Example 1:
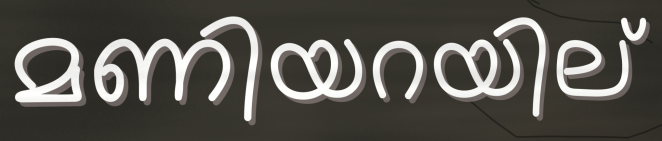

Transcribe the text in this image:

മണിയറയില്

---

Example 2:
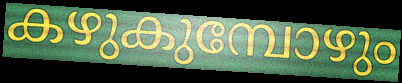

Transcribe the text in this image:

കഴുകുമ്പോഴും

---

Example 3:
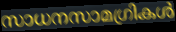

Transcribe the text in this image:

സാധനസാമഗ്രികൾ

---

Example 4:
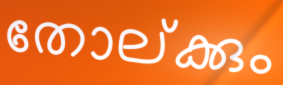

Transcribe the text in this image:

തോല്ക്കും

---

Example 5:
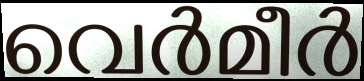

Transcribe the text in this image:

വെർമീർ